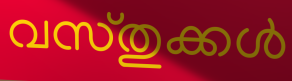
വസ്തുക്കൾ